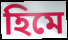
হিমে